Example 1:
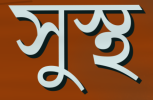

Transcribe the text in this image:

সুস্থ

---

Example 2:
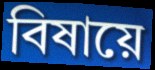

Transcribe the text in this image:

বিষায়ে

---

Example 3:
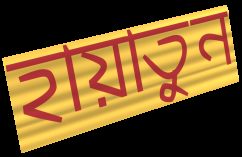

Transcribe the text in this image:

হায়াতুন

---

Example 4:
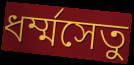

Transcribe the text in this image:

ধর্ম্মসেতু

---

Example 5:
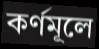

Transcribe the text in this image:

কর্ণমূলে